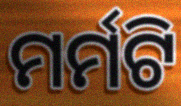
ମର୍ମଟି